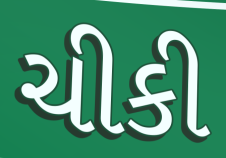
ચીકી